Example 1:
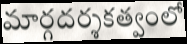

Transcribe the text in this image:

మార్గదర్శకత్వంలో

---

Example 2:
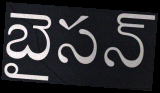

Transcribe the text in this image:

బైసన్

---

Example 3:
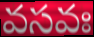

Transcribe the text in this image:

వసవః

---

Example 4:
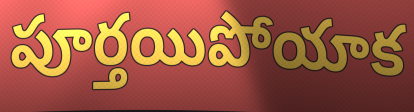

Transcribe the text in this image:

పూర్తయిపోయాక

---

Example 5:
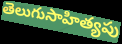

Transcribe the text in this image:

తెలుగుసాహిత్యపు